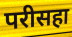
परीसहा